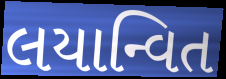
લયાન્વિત